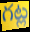
గట్ల